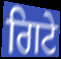
ਗਿਟੇ